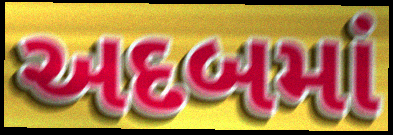
અદબમાં